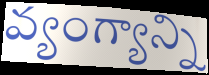
వ్యంగ్యాన్ని